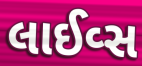
લાઈવ્સ